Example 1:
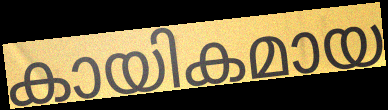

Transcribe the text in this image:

കായികമായ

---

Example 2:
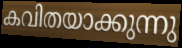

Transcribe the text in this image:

കവിതയാക്കുന്നു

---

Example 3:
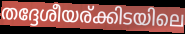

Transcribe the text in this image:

തദ്ദേശീയര്ക്കിടയിലെ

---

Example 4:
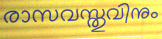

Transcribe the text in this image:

രാസവസ്തുവിനും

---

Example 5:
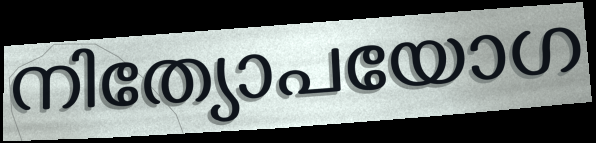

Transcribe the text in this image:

നിത്യോപയോഗ